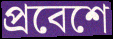
প্রবেশে